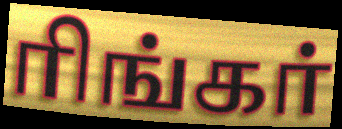
ரிங்கர்